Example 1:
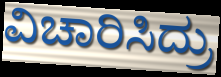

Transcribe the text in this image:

ವಿಚಾರಿಸಿದ್ರು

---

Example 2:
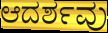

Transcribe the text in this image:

ಆದರ್ಶವು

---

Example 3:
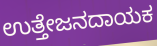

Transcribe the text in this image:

ಉತ್ತೇಜನದಾಯಕ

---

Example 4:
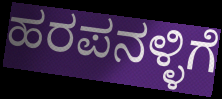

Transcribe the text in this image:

ಹರಪನಳ್ಳಿಗೆ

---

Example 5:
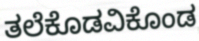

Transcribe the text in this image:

ತಲೆಕೊಡವಿಕೊಂಡ